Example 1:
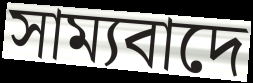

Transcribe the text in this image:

সাম্যবাদে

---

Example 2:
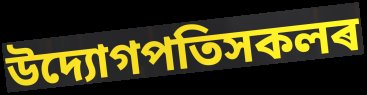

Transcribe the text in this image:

উদ্যোগপতিসকলৰ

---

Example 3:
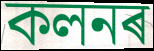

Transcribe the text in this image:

কলনৰ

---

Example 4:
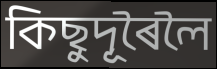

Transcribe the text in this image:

কিছুদূৰৈলৈ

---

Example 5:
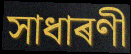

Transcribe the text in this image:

সাধাৰণী